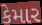
કેમાર